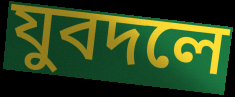
যুবদলে